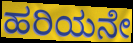
ಹರಿಯನೇ